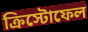
ক্রিস্টোফেল